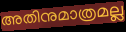
അതിനുമാത്രമല്ല